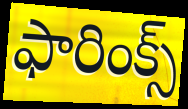
ఫారింక్స్